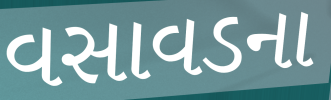
વસાવડના